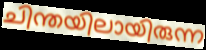
ചിന്തയിലായിരുന്ന